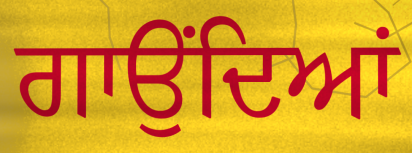
ਗਾਉਂਦਿਆਂ